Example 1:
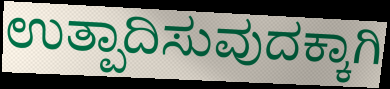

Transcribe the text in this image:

ಉತ್ಪಾದಿಸುವುದಕ್ಕಾಗಿ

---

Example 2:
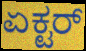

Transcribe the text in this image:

ಏಕ್ಟರ್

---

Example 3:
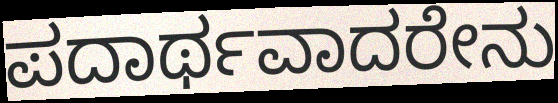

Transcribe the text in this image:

ಪದಾರ್ಥವಾದರೇನು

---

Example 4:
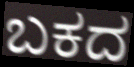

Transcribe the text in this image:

ಬಕದ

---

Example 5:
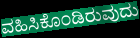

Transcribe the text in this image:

ವಹಿಸಿಕೊಂಡಿರುವುದು